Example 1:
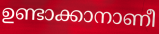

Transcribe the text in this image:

ഉണ്ടാക്കാനാണീ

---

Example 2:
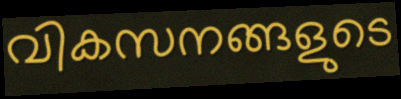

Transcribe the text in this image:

വികസനങ്ങളുടെ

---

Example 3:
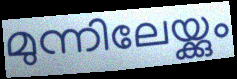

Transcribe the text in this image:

മുന്നിലേയ്ക്കും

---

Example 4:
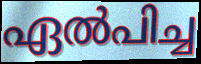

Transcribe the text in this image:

ഏൽപിച്ച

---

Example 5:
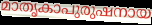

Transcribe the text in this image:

മാതൃകാപുരുഷനായ